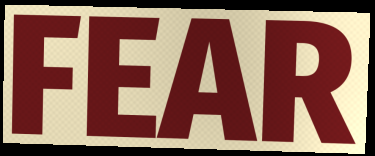
FEAR